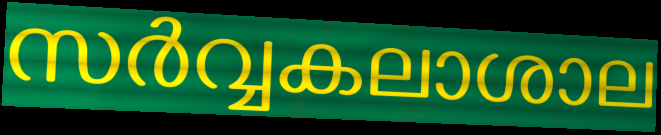
സർവ്വകലാശാല